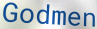
Godmen